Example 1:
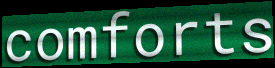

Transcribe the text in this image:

comforts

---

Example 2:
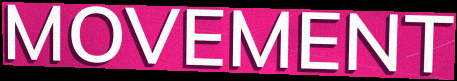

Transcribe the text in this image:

MOVEMENT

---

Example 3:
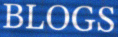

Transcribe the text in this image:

BLOGS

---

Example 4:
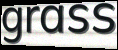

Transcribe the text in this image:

grass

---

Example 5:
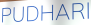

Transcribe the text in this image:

PUDHARI